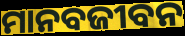
ମାନବଜୀବନ